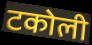
टकोली